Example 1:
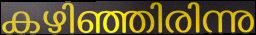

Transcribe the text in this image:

കഴിഞ്ഞിരിന്നു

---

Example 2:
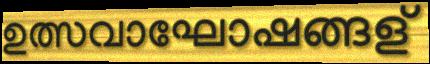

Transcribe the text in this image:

ഉത്സവാഘോഷങ്ങള്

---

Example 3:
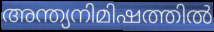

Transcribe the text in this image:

അന്ത്യനിമിഷത്തിൽ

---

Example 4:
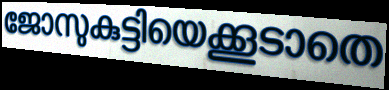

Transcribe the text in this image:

ജോസുകുട്ടിയെക്കൂടാതെ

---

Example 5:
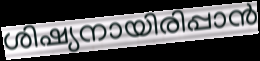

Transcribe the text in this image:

ശിഷ്യനായിരിപ്പാൻ